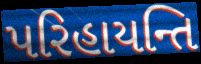
પરિહાયન્તિ